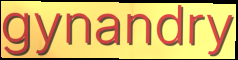
gynandry